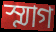
স্মাগ